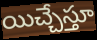
యిచ్చేస్తూ